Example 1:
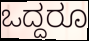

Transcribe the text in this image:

ಒದ್ದರೂ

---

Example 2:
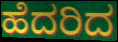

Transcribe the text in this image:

ಹೆದರಿದ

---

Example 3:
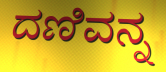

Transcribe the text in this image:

ದಣಿವನ್ನ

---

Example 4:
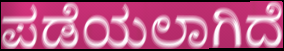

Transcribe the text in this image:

ಪಡೆಯಲಾಗಿದೆ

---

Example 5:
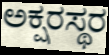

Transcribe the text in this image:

ಅಕ್ಷರಸ್ಥರ